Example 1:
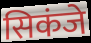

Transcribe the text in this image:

सिकंजे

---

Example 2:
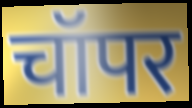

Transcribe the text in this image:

चॉपर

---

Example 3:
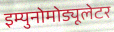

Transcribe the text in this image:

इम्युनोमोड्यूलेटर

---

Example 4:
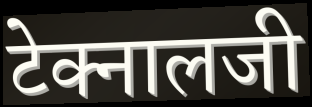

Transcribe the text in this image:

टेक्नालजी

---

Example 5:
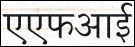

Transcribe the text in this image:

एएफआई